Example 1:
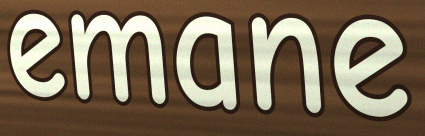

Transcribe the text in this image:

emane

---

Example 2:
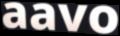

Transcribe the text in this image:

aavo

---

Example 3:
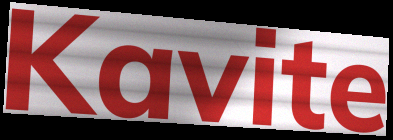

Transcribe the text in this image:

Kavite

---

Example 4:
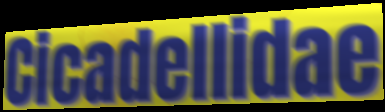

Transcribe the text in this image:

Cicadellidae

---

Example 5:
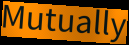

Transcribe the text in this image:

Mutually